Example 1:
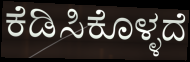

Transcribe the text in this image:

ಕೆಡಿಸಿಕೊಳ್ಳದೆ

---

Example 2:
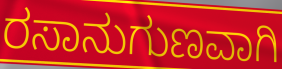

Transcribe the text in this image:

ರಸಾನುಗುಣವಾಗಿ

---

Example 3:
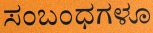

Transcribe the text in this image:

ಸಂಬಂಧಗಳೂ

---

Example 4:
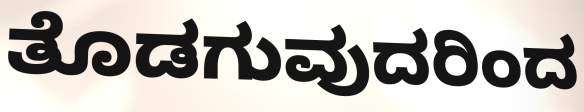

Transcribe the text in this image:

ತೊಡಗುವುದರಿಂದ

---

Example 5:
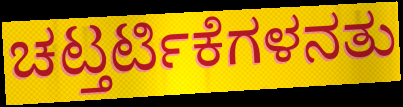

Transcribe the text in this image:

ಚಟ್ತರ್ಟಿಕೆಗಳನತು